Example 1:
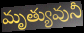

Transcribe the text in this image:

మృత్యువునీ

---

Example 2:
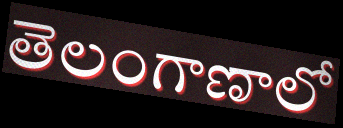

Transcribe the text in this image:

తెలంగాణాలో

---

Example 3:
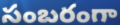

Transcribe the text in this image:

సంబరంగా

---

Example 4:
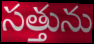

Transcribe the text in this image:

సత్తును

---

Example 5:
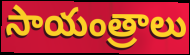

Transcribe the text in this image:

సాయంత్రాలు